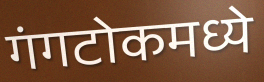
गंगटोकमध्ये